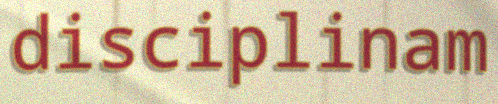
disciplinam